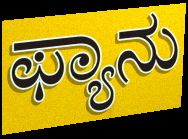
ಫ್ಯಾನು